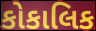
કોકાલિક